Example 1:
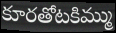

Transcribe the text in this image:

కూరతోటకిమ్ము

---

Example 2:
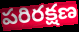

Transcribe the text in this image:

పరిరక్షణ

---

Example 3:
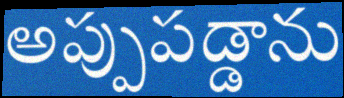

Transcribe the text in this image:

అప్పుపడ్డాను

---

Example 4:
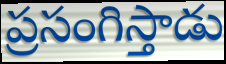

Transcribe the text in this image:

ప్రసంగిస్తాడు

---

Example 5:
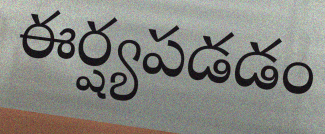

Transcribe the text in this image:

ఈర్ష్యపడడం